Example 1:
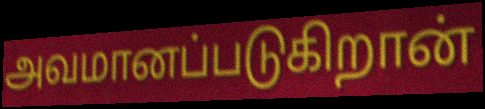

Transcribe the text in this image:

அவமானப்படுகிறான்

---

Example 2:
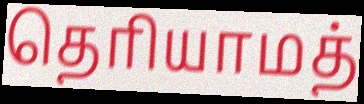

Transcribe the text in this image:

தெரியாமத்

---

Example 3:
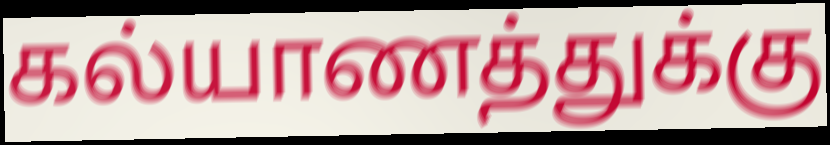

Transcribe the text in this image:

கல்யாணத்துக்கு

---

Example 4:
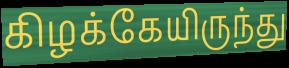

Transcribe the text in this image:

கிழக்கேயிருந்து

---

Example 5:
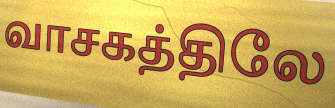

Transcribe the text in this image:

வாசகத்திலே